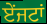
ਏਂਜਟਾਂ